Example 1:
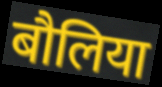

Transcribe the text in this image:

बौलिया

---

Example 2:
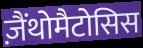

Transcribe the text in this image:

ज़ैंथोमैटोसिस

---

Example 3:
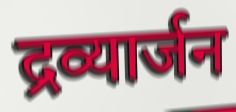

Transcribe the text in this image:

द्रव्यार्जन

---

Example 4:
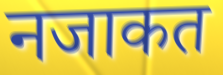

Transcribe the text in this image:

नजाकत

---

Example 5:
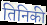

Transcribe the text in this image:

तिनिकी